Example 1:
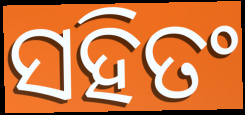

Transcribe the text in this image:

ସହିତଂ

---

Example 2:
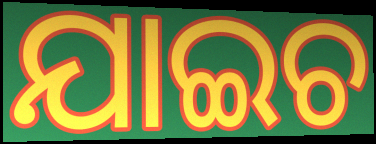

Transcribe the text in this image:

ଯାଇଚ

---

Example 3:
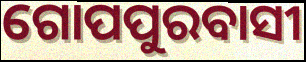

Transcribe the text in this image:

ଗୋପପୁରବାସୀ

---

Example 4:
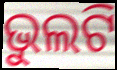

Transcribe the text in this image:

ଭୁଲଟି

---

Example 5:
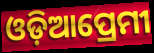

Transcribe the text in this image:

ଓଡ଼ିଆପ୍ରେମୀ